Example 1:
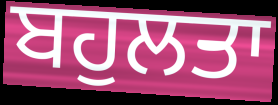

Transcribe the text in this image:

ਬਹੁਲਤਾ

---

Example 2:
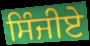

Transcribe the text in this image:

ਸਿੰਜੀਏ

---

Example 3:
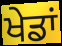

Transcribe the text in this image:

ਖੇਡਾਂ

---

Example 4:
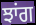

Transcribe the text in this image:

ਝਾਂਗ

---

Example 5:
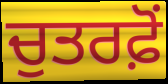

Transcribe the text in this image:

ਚੁਤਰਫ਼ੋਂ